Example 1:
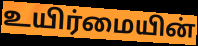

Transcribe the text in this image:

உயிர்மையின்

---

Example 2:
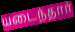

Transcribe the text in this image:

யடைந்தார்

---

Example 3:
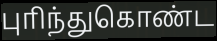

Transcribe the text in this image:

புரிந்துகொண்ட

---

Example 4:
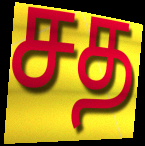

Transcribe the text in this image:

சத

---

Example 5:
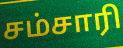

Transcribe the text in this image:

சம்சாரி